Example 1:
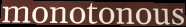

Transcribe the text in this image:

monotonous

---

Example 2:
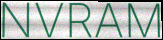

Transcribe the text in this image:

NVRAM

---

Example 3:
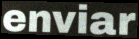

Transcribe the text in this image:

enviar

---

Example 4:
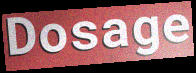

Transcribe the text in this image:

Dosage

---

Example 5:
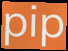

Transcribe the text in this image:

pip